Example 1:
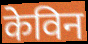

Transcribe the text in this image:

केविन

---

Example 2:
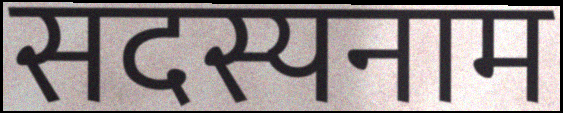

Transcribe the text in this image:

सदस्यनाम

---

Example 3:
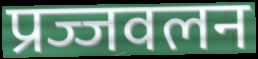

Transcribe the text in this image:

प्रज्‍जवलन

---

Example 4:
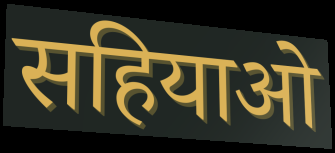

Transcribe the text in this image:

सहियाओ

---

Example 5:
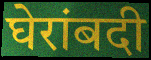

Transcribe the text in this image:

घेरांबदी